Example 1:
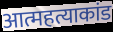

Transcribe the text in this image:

आत्महत्याकांड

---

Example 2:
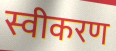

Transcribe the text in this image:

स्वीकरण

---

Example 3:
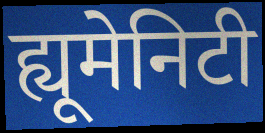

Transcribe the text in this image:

ह्यूमेनिटी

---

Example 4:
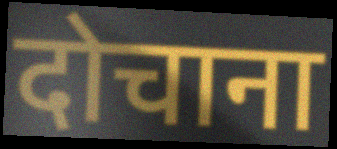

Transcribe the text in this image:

दोचाना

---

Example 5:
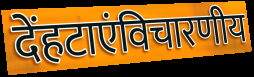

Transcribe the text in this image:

देंहटाएंविचारणीय